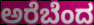
ಅರೆಬೆಂದ